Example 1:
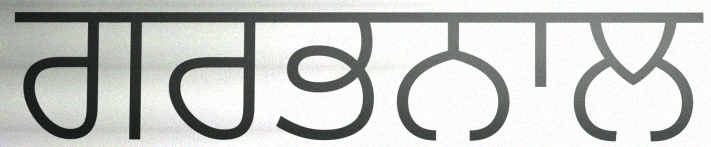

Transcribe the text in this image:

ਗਰਭਨਾਲ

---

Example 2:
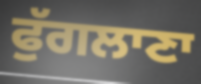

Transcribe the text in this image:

ਫੁੱਗਲਾਣਾ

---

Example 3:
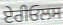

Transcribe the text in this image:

ਏਰੀਓਲਸ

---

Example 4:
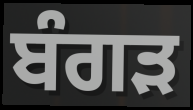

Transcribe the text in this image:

ਬੰਗੜ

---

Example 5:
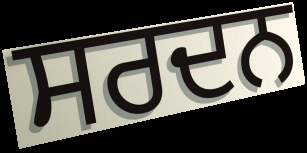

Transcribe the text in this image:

ਸਰਦਨ